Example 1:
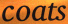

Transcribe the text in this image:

coats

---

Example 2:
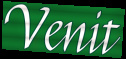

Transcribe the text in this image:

Venit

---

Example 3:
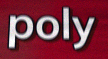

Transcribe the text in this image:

poly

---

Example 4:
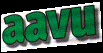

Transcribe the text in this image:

aavu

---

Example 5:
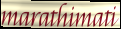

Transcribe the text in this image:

marathimati